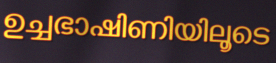
ഉച്ചഭാഷിണിയിലൂടെ